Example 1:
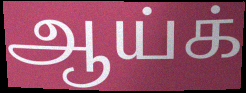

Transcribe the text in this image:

ஆய்க்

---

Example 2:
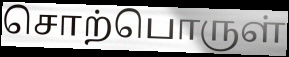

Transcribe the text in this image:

சொற்பொருள்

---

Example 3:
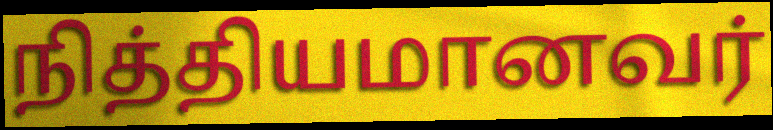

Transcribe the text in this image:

நித்தியமானவர்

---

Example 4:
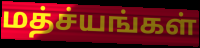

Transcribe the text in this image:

மத்ச்யங்கள்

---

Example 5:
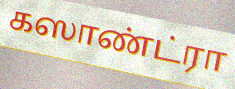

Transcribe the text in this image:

கஸாண்ட்ரா